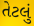
તેટલું